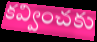
కవ్వించకు